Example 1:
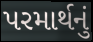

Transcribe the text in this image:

પરમાર્થનું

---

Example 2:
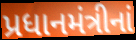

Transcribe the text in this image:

પ્રધાનમંત્રીનાં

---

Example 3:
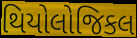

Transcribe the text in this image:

થિયોલોજિકલ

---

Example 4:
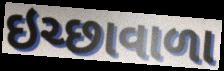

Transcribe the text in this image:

ઇચ્છાવાળા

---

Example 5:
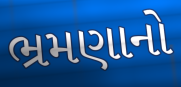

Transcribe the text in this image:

ભ્રમણાનો